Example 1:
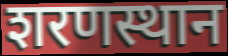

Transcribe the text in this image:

शरणस्थान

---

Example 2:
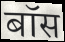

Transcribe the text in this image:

बॉस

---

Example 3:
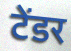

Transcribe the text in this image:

टेंडर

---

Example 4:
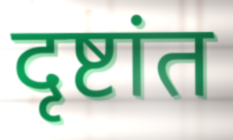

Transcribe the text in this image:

दृष्टांत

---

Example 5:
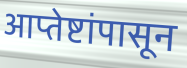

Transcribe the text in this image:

आप्तेष्टांपासून